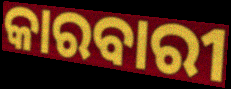
କାରବାରୀ